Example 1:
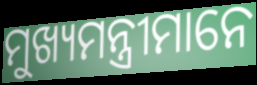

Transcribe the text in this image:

ମୁଖ୍ୟମନ୍ତ୍ରୀମାନେ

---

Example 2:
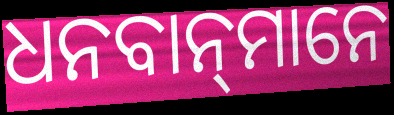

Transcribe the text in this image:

ଧନବାନ୍‍ମାନେ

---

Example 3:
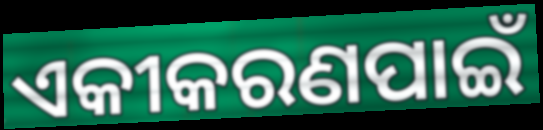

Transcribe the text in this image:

ଏକୀକରଣପାଇଁ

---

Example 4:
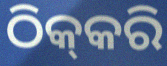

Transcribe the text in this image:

ଠିକ୍‍କରି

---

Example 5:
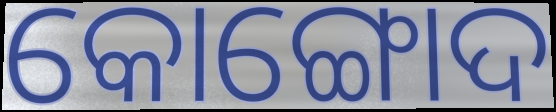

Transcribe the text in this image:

କୋଙ୍ଗୋଦ